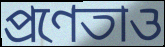
প্রণেতাও